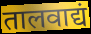
तालवाद्यं